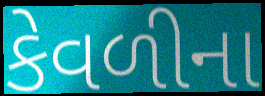
કેવળીના